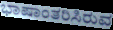
ಭಾಷಾಂತರಿಸಿರುವ